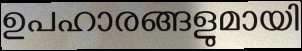
ഉപഹാരങ്ങളുമായി